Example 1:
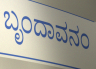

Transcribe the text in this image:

ಬೃಂದಾವನಂ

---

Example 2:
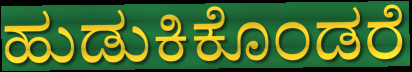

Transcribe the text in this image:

ಹುಡುಕಿಕೊಂಡರೆ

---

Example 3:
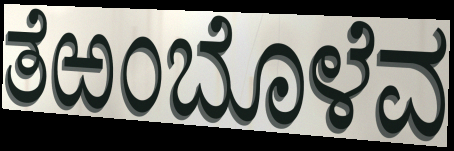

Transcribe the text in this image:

ತೆಱಂಬೊಳೆವ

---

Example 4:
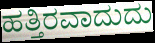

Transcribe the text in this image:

ಹತ್ತಿರವಾದುದು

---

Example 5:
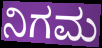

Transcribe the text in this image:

ನಿಗಮ